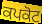
ਕਪਕੋਟ